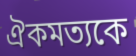
ঐকমত্যকে